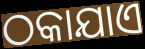
ଠକାଯାଏ